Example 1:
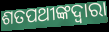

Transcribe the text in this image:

ଶତପଥୀଙ୍କଦ୍ୱାରା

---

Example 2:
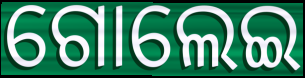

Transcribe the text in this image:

ଗୋଲେଇ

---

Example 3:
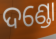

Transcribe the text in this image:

ଦଣ୍ଡୋ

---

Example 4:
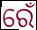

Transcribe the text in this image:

ରେଁ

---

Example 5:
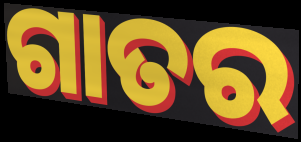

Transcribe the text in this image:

ଗାତର